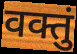
वक्तुं